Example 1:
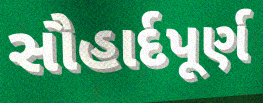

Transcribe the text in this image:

સૌહાર્દપૂર્ણ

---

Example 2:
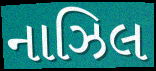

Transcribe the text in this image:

નાઝિલ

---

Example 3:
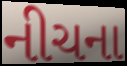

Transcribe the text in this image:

નીચના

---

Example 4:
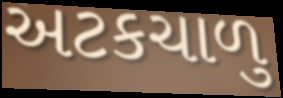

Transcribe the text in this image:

અટકચાળુ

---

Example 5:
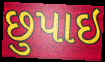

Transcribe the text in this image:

છુપાઇ